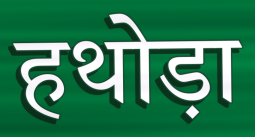
हथोड़ा